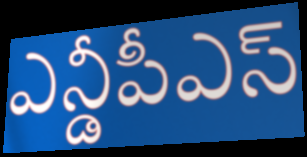
ఎన్డీపీఎస్